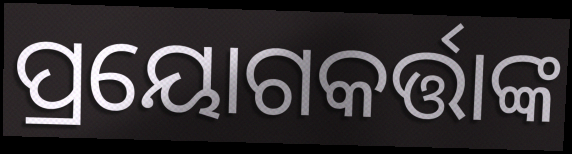
ପ୍ରୟୋଗକର୍ତ୍ତାଙ୍କ